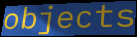
objects